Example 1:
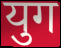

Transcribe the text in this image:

युग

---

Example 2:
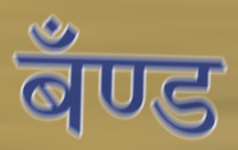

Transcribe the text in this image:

बँण्ड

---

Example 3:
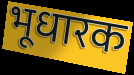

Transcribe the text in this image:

भूधारक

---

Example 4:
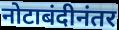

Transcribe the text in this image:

नोटाबंदीनंतर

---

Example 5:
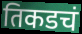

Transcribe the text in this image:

तिकडचं